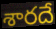
శారదే